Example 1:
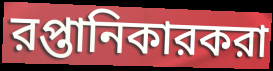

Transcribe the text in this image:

রপ্তানিকারকরা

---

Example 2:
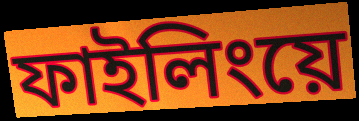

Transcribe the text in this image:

ফাইলিংয়ে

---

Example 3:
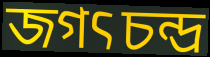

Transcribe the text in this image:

জগৎচন্দ্র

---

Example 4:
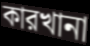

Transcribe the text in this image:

কারখানা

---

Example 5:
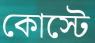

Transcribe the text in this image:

কোস্টে